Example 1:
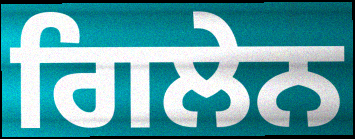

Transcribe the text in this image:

ਗਿਲੇਨ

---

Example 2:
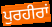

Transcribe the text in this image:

ਪੁਰਹੀਰਾਂ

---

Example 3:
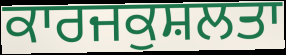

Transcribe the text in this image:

ਕਾਰਜਕੁਸ਼ਲਤਾ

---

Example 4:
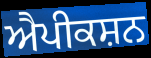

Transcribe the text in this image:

ਐਪੀਕਸ਼ਨ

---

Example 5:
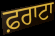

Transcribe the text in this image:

ਫ਼ਰਾਟਾ